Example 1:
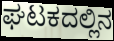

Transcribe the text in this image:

ಘಟಕದಲ್ಲಿನ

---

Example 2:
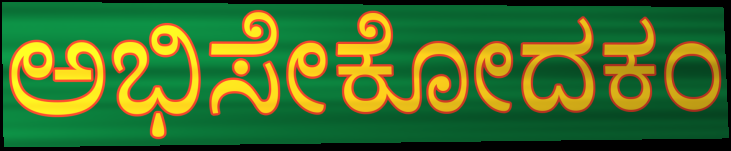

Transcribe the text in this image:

ಅಭಿಸೇಕೋದಕಂ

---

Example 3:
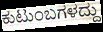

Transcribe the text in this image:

ಕುಟುಂಬಗಳದ್ದು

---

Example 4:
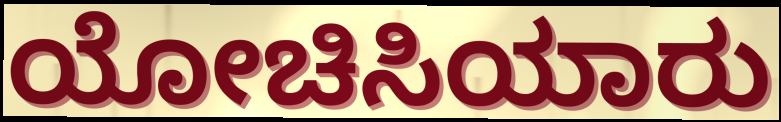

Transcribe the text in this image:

ಯೋಚಿಸಿಯಾರು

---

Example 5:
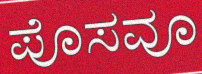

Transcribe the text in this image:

ಪೊಸವೂ